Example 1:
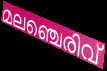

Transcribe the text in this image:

മലഞ്ചെരിവ്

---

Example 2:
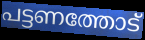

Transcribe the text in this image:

പട്ടണത്തോട്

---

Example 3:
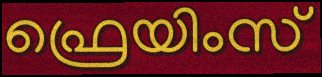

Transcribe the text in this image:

ഫ്രെയിംസ്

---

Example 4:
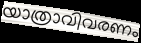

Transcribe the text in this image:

യാത്രാവിവരണം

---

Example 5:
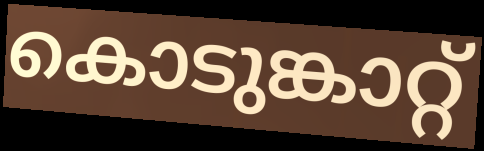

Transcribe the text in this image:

കൊടുങ്കാറ്റ്